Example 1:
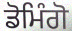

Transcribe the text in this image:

ਡੋਮਿੰਗੋ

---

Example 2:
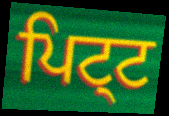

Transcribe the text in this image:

ਪਿਟ੍ਟ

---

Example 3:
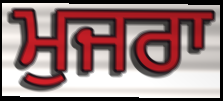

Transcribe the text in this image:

ਮੁਜਰਾ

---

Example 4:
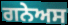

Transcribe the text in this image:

ਗਨੇਅਸ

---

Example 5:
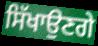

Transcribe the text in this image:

ਸਿੱਖਾਉਣਗੇ